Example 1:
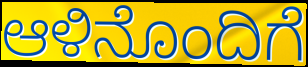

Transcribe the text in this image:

ಆಳಿನೊಂದಿಗೆ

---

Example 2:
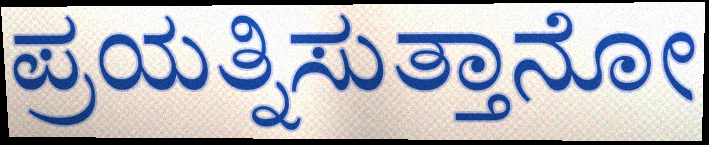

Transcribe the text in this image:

ಪ್ರಯತ್ನಿಸುತ್ತಾನೋ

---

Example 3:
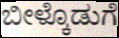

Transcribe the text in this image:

ಬೀಳ್ಕೊಡುಗೆ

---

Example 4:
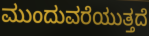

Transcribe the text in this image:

ಮುಂದುವರೆಯುತ್ತದೆ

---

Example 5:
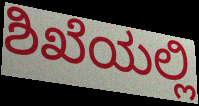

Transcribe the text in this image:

ಶಿಖೆಯಲ್ಲಿ